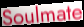
Soulmate